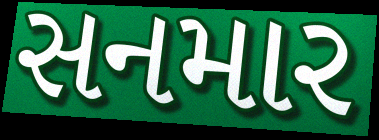
સનમાર